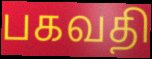
பகவதி